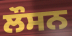
ਲੌਸਨ